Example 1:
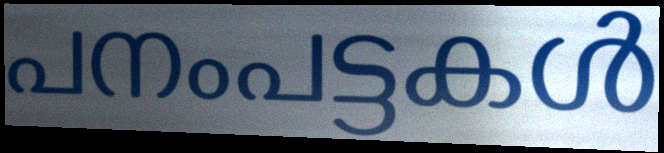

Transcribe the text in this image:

പനംപട്ടകൾ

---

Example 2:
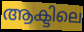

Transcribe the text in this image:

ആക്ടിലെ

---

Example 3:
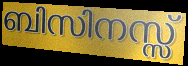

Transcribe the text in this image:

ബിസിനസ്സ്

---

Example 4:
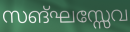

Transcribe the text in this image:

സങ്ഘസ്സേവ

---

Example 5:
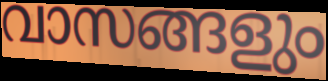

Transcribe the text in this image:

വാസങ്ങളും